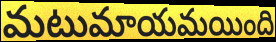
మటుమాయమయింది